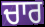
ਚਾਰ